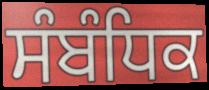
ਸੰਬੰਧਿਕ